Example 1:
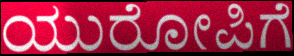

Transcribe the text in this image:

ಯುರೋಪಿಗೆ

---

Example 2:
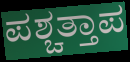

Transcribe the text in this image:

ಪಶ್ಚತ್ತಾಪ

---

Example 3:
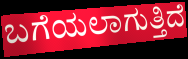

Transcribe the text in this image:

ಬಗೆಯಲಾಗುತ್ತಿದೆ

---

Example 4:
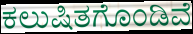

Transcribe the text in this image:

ಕಲುಷಿತಗೊಂಡಿವೆ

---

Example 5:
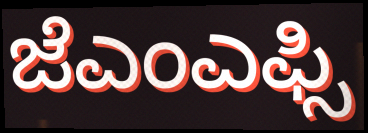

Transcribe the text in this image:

ಜೆಎಂಎಫ್ಸಿ